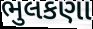
ભુલકણા